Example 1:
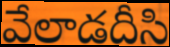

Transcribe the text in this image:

వేలాడదీసి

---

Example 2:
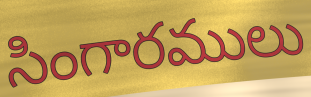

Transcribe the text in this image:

సింగారములు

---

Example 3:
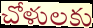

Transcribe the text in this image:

చోళులకు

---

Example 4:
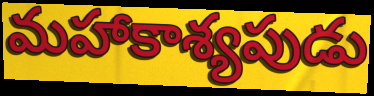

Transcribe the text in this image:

మహాకాశ్యపుడు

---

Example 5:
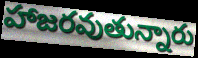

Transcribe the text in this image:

హాజరవుతున్నారు